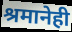
श्रमानेही